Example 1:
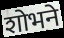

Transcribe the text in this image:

शोभने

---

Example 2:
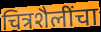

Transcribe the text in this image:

चित्रशैलींचा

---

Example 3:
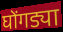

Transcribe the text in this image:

घोंगड्या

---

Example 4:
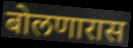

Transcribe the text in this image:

बोलणारास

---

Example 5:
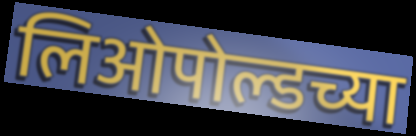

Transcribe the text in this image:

लिओपोल्डच्या